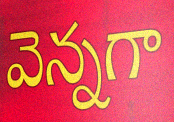
వెన్నగా